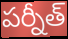
పర్నీత్